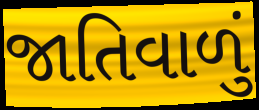
જાતિવાળું